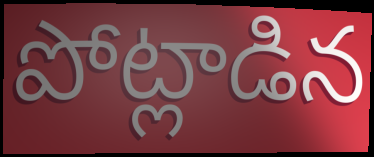
పోట్లాడిన